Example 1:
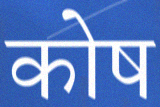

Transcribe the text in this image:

कोष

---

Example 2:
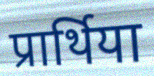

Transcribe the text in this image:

प्रार्थिया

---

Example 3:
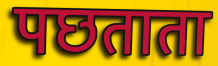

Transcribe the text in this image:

पछताता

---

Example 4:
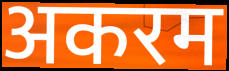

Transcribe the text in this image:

अकरम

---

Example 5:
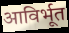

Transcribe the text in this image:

आविर्भूत